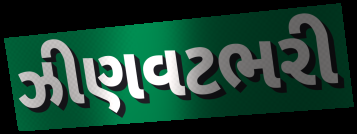
ઝીણવટભરી